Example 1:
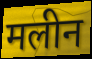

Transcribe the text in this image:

मलीन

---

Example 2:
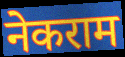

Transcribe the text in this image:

नेकराम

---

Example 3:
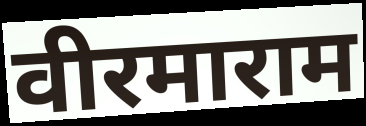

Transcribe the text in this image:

वीरमाराम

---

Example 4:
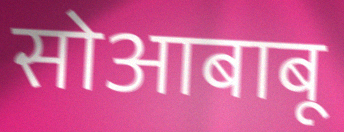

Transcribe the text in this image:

सोआबाबू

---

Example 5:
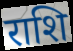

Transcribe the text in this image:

राशि